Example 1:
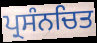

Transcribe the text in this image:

ਪ੍ਰਸੰਨਚਿਤ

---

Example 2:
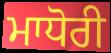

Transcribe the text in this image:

ਮਾਧੋਰੀ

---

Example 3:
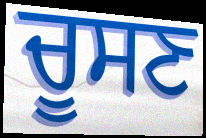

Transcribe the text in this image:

ਚੂਸਣ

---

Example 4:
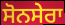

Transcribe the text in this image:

ਸੋਨਸੇਰਾ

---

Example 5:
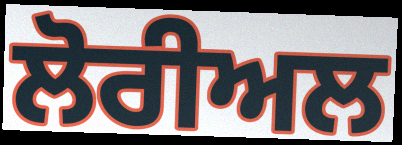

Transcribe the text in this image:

ਲੋਰੀਅਲ